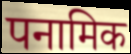
पनामिक